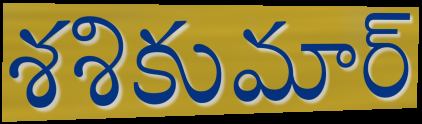
శశికుమార్